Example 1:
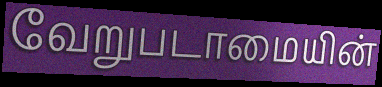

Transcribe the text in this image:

வேறுபடாமையின்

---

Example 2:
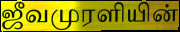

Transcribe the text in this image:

ஜீவமுரளியின்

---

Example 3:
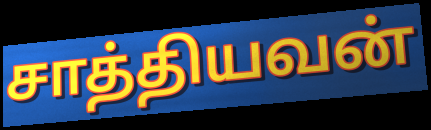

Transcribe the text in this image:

சாத்தியவன்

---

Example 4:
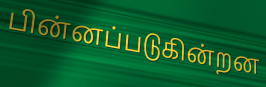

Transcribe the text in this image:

பின்னப்படுகின்றன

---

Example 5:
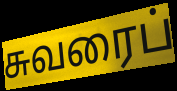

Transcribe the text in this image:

சுவரைப்